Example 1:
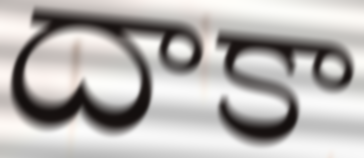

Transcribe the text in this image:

దాకా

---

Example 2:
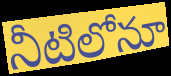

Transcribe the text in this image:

నీటిలోనూ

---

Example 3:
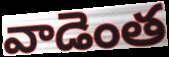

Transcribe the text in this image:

వాడెంత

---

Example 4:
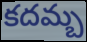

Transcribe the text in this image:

కదమ్బ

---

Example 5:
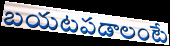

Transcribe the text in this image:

బయటపడాలంటే